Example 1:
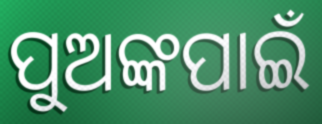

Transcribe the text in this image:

ପୁଅଙ୍କପାଇଁ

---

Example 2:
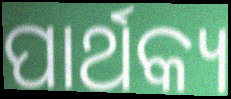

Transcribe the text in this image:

ପାର୍ଥକ୍ୟ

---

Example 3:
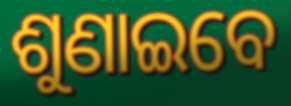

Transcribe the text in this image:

ଶୁଣାଇବେ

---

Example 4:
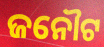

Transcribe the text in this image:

ଜନୌଟ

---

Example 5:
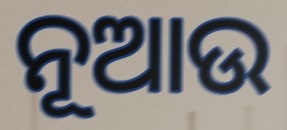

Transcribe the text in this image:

ନୂଆଉ